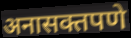
अनासक्तपणे